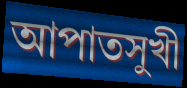
আপাতসুখী